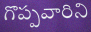
గొప్పవారిని